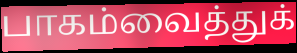
பாகம்வைத்துக்